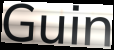
Guin